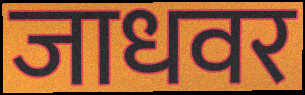
जाधवर